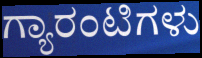
ಗ್ಯಾರಂಟಿಗಳು